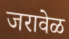
जरावेळ